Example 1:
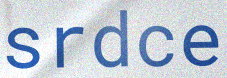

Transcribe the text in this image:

srdce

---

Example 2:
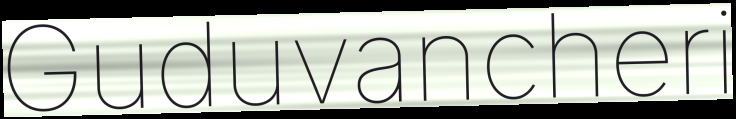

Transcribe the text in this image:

Guduvancheri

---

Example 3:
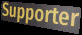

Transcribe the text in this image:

Supporter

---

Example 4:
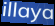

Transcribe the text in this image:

illaya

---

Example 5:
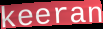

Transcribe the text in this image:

keeran